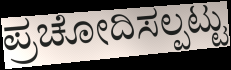
ಪ್ರಚೋದಿಸಲ್ಪಟ್ಟು